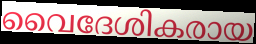
വൈദേശികരായ